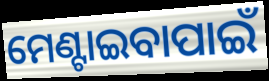
ମେଣ୍ଟାଇବାପାଇଁ